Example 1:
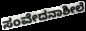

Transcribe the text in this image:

ಸಂವೇದನಾಶೀಲೆ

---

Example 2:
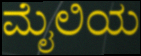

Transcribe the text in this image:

ಮೈಲಿಯ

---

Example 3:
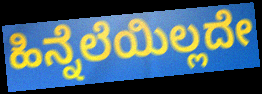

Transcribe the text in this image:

ಹಿನ್ನೆಲೆಯಿಲ್ಲದೇ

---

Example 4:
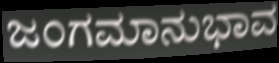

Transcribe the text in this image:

ಜಂಗಮಾನುಭಾವ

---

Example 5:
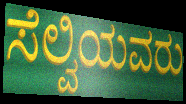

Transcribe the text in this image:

ಸೆಲ್ವಿಯವರು